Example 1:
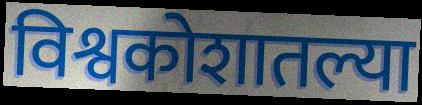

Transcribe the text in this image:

विश्वकोशातल्या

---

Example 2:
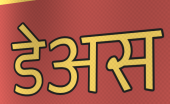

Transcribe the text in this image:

डेअस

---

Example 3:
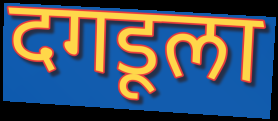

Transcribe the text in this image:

दगडूला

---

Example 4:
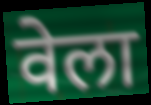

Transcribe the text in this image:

वेला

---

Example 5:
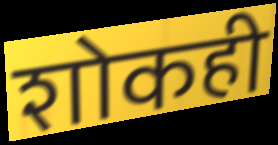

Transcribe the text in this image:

शोकही